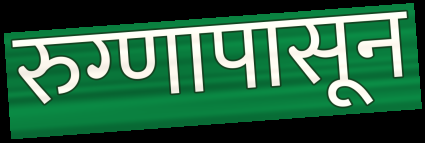
रुग्णापासून